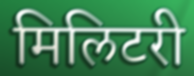
मिलिटरी